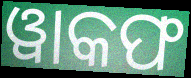
ୱାକଫ